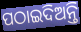
ପଠାଇଦିଅନ୍ତି